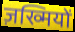
ज़ख्मियों